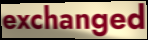
exchanged